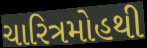
ચારિત્રમોહથી